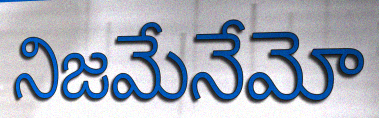
నిజమేనేమో